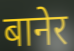
बानेर